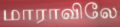
மாராவிலே